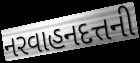
નરવાહનદત્તની